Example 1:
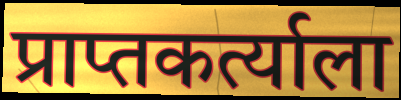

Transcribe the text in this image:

प्राप्तकर्त्याला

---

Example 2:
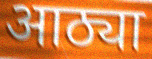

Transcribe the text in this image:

आठ्या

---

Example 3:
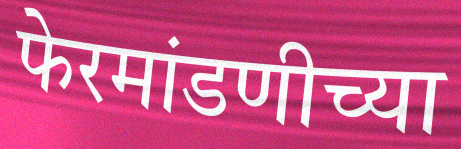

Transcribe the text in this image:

फेरमांडणीच्या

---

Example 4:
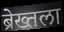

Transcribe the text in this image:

ब्रेख्तला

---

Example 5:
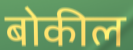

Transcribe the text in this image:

बोकील